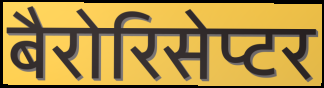
बैरोरिसेप्टर